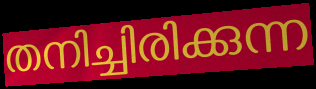
തനിച്ചിരിക്കുന്ന